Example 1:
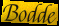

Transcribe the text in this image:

Bodde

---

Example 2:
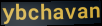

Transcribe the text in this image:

ybchavan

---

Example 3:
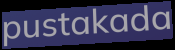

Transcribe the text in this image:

pustakada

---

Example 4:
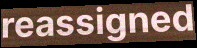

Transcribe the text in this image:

reassigned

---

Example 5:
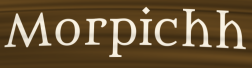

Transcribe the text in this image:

Morpichh